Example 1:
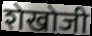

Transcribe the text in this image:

शेखोजी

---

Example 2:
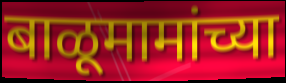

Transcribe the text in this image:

बाळूमामांच्या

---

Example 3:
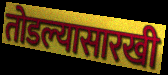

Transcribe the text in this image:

तोडल्यासारखी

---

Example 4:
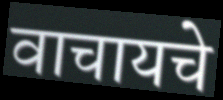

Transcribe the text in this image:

वाचायचे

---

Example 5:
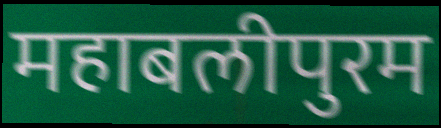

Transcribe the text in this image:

महाबलीपुरम